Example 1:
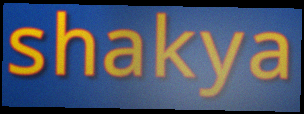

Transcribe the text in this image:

shakya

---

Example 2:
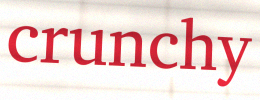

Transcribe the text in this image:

crunchy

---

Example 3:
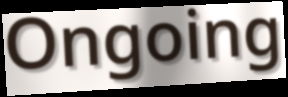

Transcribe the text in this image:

Ongoing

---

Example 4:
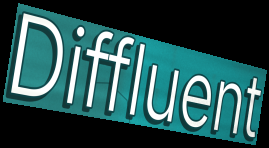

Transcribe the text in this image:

Diffluent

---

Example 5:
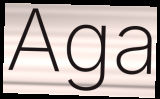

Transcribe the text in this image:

Aga